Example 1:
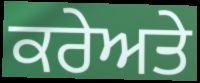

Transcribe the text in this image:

ਕਰੇਅਤੇ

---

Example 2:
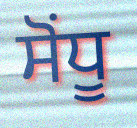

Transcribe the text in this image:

ਸੋਂਧੂ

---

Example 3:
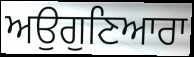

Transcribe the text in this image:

ਅਉਗੁਣਿਆਰਾ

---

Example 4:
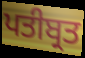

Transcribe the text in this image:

ਪਤੀਬ੍ਰਤ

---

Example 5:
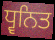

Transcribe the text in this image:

ਧ੍ਵਨਿਤ